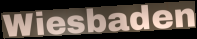
Wiesbaden